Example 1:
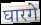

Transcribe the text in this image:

घारगे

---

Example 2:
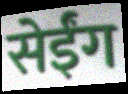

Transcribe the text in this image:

सेईंग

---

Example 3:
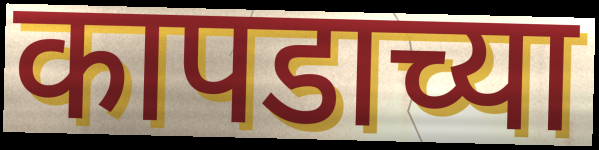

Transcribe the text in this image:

कापडाच्या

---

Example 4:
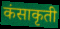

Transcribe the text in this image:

कंसाकृती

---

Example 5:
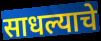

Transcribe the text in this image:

साधल्याचे